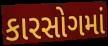
કારસોગમાં